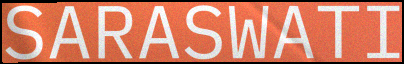
SARASWATI